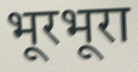
भूरभूरा